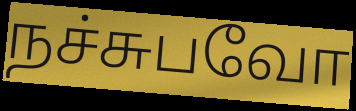
நச்சுபவோ